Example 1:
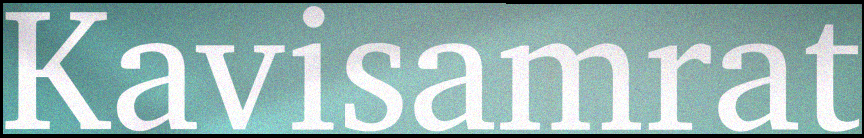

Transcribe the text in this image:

Kavisamrat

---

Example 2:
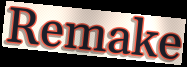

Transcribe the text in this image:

Remake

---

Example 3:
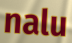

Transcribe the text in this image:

nalu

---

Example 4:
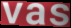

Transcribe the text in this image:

vas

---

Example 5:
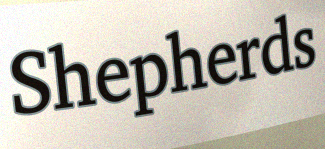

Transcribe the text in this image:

Shepherds